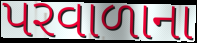
પરવાળાના